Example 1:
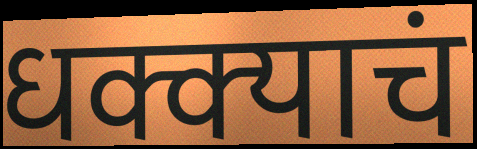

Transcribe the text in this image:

धक्क्याचं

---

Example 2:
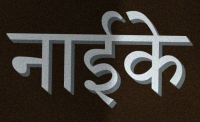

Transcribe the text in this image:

नाईके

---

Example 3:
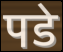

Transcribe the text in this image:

पडे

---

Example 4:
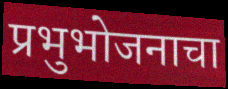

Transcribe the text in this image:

प्रभुभोजनाचा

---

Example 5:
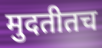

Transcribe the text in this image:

मुदतीतच